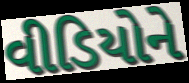
વીડિયોને